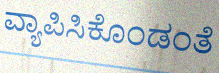
ವ್ಯಾಪಿಸಿಕೊಂಡಂತೆ